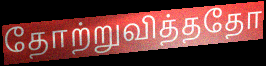
தோற்றுவித்ததோ